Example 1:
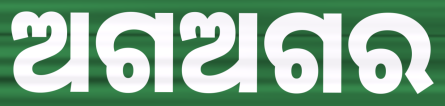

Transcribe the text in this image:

ଅଗଅଗର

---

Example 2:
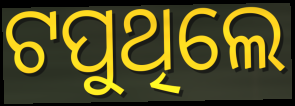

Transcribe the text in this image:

ଟପୁଥିଲେ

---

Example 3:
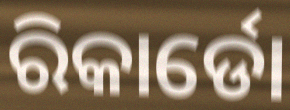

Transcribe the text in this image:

ରିକାର୍ଡୋ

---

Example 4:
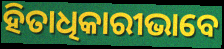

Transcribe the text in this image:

ହିତାଧିକାରୀଭାବେ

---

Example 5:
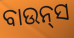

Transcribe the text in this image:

ବାଉନ୍‍ସ